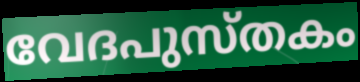
വേദപുസ്തകം